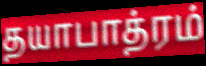
தயாபாத்ரம்